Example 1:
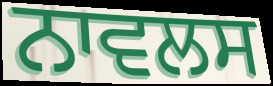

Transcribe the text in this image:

ਨਾਵਲਸ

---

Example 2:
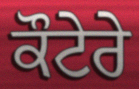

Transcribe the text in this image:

ਕੌਟੇਰੇ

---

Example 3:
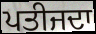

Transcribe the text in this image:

ਪਤੀਜਦਾ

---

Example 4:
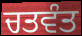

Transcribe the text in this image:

ਚਤਵੰਤ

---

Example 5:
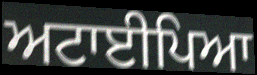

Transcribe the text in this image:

ਅਟਾਈਪਿਆ